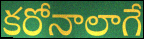
కరోనాలాగే